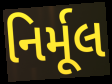
નિર્મૂલ